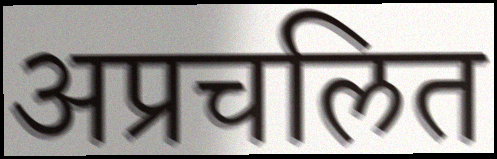
अप्रचलित